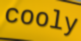
cooly